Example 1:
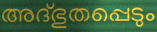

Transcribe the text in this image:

അദ്ഭുതപ്പെടും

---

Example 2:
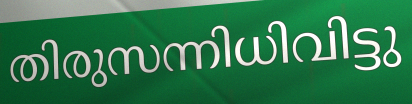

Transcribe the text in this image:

തിരുസന്നിധിവിട്ടു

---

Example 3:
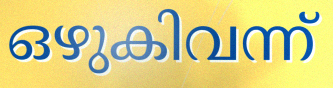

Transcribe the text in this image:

ഒഴുകിവന്ന്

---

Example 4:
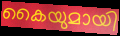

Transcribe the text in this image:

കൈയുമായി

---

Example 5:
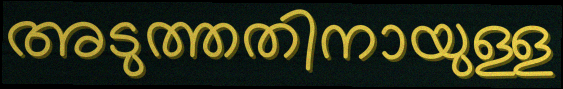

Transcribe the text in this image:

അടുത്തതിനായുള്ള